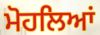
ਮੋਹਲਿਆਂ